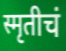
स्मृतीचं